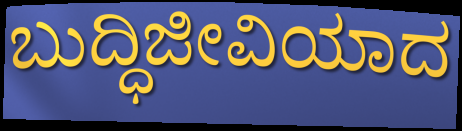
ಬುದ್ಧಿಜೀವಿಯಾದ